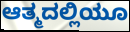
ಆತ್ಮದಲ್ಲಿಯೂ